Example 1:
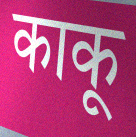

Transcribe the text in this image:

काकू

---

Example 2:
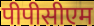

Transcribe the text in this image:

पीपीसीएम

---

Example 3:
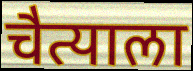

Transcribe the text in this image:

चैत्याला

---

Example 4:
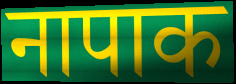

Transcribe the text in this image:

नापाक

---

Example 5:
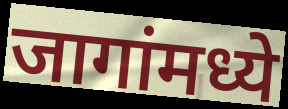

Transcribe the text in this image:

जागांमध्ये